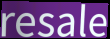
resale